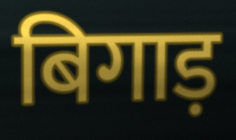
बिगाड़